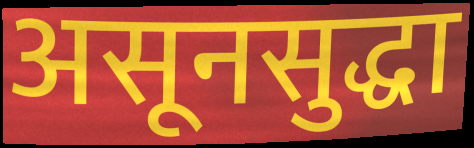
असूनसुद्धा